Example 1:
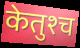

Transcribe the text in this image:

केतुश्च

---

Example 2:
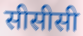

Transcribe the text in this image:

सीसीसी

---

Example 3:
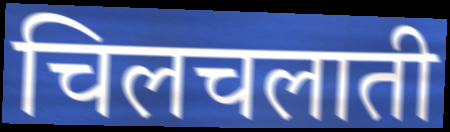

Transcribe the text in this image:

चिलचलाती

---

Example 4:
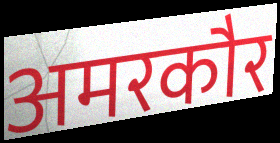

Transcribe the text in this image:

अमरकौर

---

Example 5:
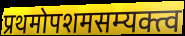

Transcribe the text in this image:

प्रथमोपशमसम्यक्त्व